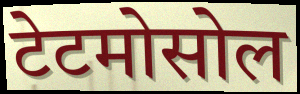
टेटमोसोल